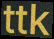
ttk